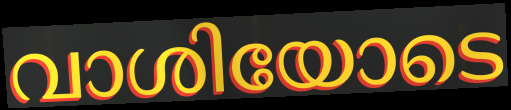
വാശിയോടെ